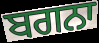
ਬਗਨਾ